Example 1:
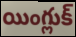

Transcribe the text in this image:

యింగ్లుక్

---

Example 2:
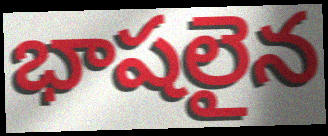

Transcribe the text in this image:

భాషలైన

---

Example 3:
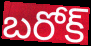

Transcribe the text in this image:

బరోక్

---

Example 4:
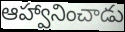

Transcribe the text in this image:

ఆహ్వానించాడు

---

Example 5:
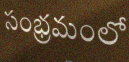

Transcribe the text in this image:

సంభ్రమంలో